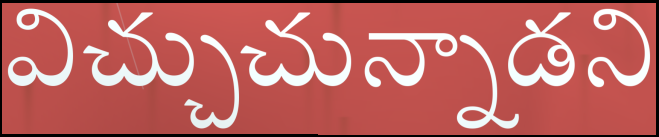
విచ్చుచున్నాడని